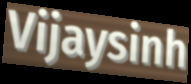
Vijaysinh